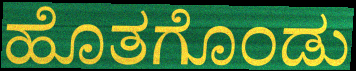
ಹೊತಗೊಂಡು